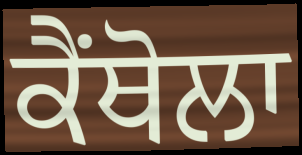
ਕੈਂਥੋਲਾ